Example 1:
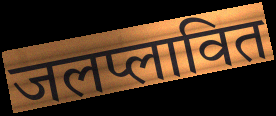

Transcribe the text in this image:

जलप्लावित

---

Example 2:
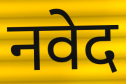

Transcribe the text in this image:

नवेद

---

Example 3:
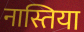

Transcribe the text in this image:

नास्तिया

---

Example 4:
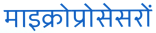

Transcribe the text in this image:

माइक्रोप्रोसेसरों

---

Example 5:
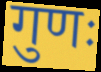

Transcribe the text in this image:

गुणः